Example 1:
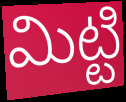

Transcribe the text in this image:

మిట్టి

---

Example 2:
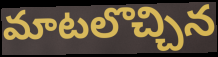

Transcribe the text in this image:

మాటలొచ్చిన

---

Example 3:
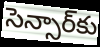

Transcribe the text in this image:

సెన్సార్‌కు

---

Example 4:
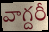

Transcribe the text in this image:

వాగ్దరీ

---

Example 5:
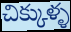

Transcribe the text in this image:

చిక్కుళ్ళ